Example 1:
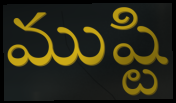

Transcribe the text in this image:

ముష్టి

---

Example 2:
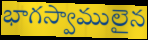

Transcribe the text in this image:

భాగస్వాములైన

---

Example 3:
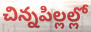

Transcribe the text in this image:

చిన్నపిల్లల్లో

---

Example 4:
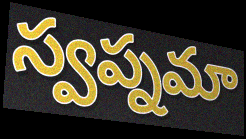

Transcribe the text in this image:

స్వప్నమా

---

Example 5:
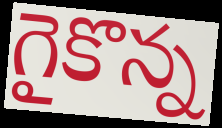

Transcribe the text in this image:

గైకొన్న